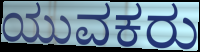
ಯುವಕರು